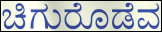
ಚಿಗುರೊಡೆವ